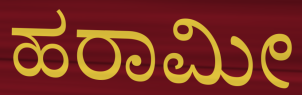
ಹರಾಮೀ